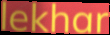
lekhar